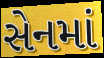
સેનમાં